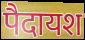
पैदायश